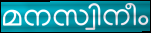
മനസ്വിനീം